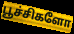
பூச்சிகளோ